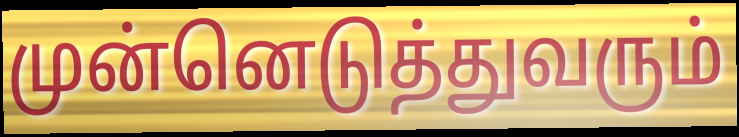
முன்னெடுத்துவரும்